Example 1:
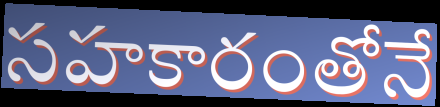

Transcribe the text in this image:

సహకారంతోనే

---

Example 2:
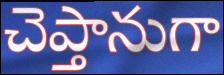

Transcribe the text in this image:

చెప్తానుగా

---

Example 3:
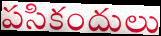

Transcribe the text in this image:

పసికందులు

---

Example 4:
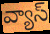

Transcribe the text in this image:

వ్యాస్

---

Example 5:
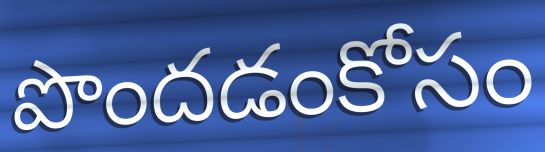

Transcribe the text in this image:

పొందడంకోసం